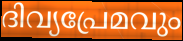
ദിവ്യപ്രേമവും